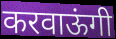
करवाऊंगी